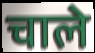
चाले